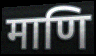
माणि